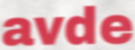
avde